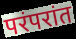
परंपरांत